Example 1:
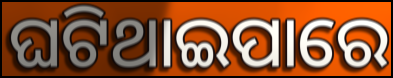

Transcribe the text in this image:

ଘଟିଥାଇପାରେ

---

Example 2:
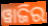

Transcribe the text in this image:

ୱାଜିର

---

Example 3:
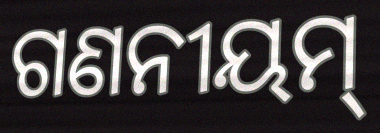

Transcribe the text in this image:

ଗଣନୀୟମ୍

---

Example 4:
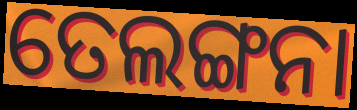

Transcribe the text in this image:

ତେଲଙ୍ଗନା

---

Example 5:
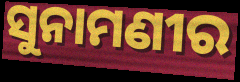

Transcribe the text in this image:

ସୁନାମଣୀର